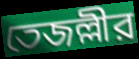
তেজল্লীর